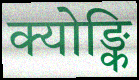
क्योङ्कि